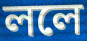
ললে